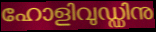
ഹോളിവുഡ്ഡിനു